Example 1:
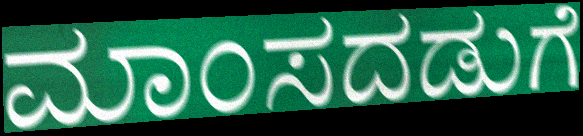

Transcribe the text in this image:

ಮಾಂಸದಡುಗೆ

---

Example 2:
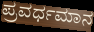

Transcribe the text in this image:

ಪ್ರವರ್ಧಮಾನ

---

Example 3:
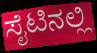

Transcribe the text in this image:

ಸೈಟಿನಲ್ಲಿ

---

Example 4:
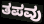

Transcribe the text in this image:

ತಪವು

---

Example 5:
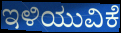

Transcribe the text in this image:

ಇಳಿಯುವಿಕೆ